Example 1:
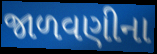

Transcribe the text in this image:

જાળવણીના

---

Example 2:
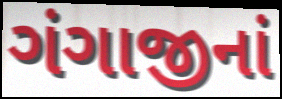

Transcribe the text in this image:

ગંગાજીનાં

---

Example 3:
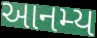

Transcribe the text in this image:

આનમ્ય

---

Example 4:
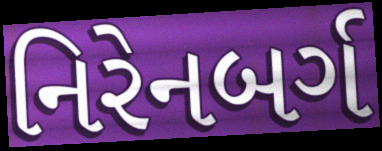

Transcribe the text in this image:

નિરેનબર્ગ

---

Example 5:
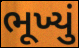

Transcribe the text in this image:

ભૂખ્યું